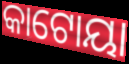
କାଟୋୟା